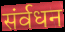
संर्वधन